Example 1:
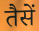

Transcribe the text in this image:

तैसें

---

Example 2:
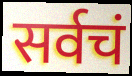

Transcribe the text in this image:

सर्वचं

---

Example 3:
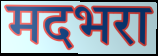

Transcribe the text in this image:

मदभरा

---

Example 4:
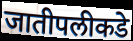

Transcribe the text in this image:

जातीपलीकडे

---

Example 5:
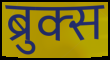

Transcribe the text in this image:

ब्रुक्‍स